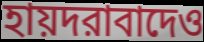
হায়দরাবাদেও